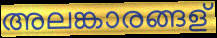
അലങ്കാരങ്ങള്